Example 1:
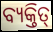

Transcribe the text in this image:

ବ୍ୟକ୍ତିତ୍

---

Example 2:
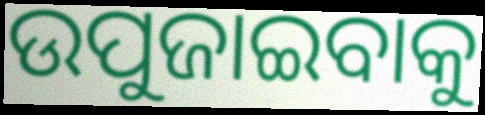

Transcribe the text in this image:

ଉପୁଜାଇବାକୁ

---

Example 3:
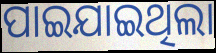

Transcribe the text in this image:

ପାଇଯାଇଥିଲା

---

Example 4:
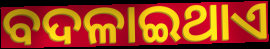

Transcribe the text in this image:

ବଦଳାଇଥାଏ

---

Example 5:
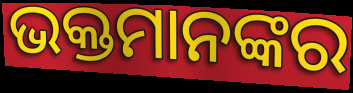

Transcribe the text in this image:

ଭକ୍ତମାନଙ୍କର